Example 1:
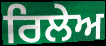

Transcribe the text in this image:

ਰਿਲੇਅ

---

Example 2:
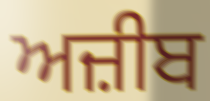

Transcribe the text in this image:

ਅਜ਼ੀਬ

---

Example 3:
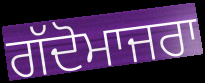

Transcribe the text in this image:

ਗੱਦੋਮਾਜਰਾ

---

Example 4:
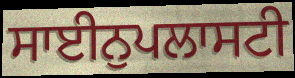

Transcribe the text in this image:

ਸਾਈਨੁਪਲਾਸਟੀ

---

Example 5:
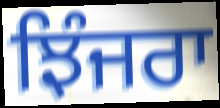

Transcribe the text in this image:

ਝਿੰਜਰਾ